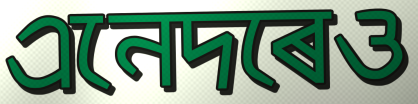
এনেদৰেও